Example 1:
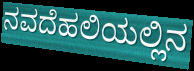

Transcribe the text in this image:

ನವದೆಹಲಿಯಲ್ಲಿನ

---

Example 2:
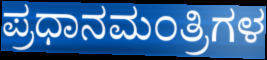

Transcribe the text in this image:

ಪ್ರಧಾನಮಂತ್ರಿಗಳ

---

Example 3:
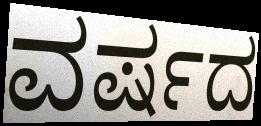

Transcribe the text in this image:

ವರ್ಷದ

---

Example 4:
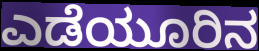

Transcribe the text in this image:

ಎಡೆಯೂರಿನ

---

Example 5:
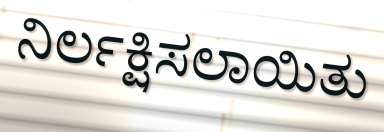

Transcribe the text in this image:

ನಿರ್ಲಕ್ಷಿಸಲಾಯಿತು